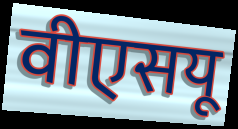
वीएसयू